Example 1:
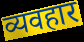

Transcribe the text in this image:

व्यवहार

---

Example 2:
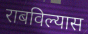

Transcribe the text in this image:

राबविल्यास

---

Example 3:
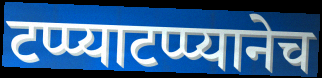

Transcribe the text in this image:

टप्प्याटप्प्यानेच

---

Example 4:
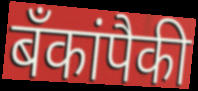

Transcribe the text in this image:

बँकांपैकी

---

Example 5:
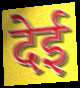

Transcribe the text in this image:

देई